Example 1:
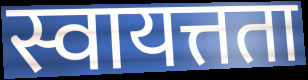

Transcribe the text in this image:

स्वायत्तता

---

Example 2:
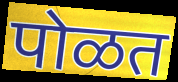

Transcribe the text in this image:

पोळत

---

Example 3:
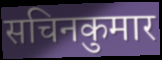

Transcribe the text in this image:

सचिनकुमार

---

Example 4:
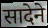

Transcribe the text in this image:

सादेने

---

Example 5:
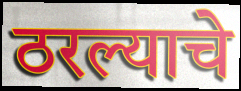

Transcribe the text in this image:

ठरल्याचे